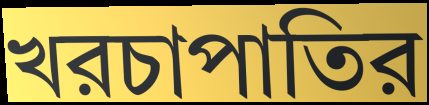
খরচাপাতির